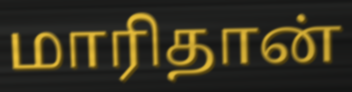
மாரிதான்